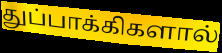
துப்பாக்கிகளால்